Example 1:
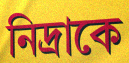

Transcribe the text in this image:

নিদ্রাকে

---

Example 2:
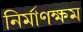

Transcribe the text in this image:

নির্মাণক্ষম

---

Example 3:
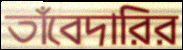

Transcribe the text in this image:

তাঁবেদারির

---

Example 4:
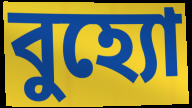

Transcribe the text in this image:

বুহ্যো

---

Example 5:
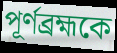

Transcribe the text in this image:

পূর্ণব্রহ্মকে